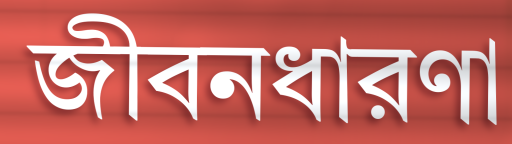
জীবনধারণা